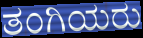
ತಂಗಿಯರು